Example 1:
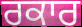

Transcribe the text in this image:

ਰਕਾਰ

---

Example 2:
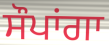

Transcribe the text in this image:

ਸੌਪਾਂਗਾ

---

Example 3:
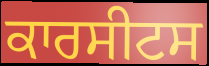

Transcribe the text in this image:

ਕਾਰਸੀਟਸ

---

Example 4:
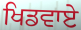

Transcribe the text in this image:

ਖਿਡਵਾਏ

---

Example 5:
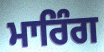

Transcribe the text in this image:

ਮਾਰਿੰਗ